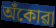
অঁকোৱা